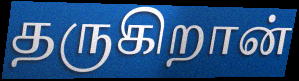
தருகிறான்